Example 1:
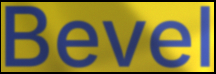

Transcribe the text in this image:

Bevel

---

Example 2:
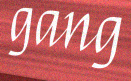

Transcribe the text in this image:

gang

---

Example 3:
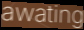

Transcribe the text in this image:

awating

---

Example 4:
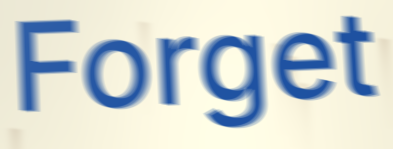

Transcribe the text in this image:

Forget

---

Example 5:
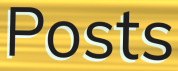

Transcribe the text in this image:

Posts